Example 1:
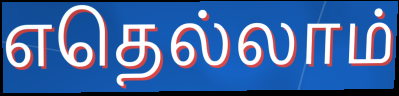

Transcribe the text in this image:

எதெல்லாம்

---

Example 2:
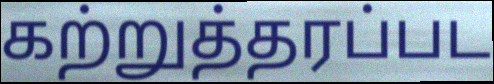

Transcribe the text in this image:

கற்றுத்தரப்பட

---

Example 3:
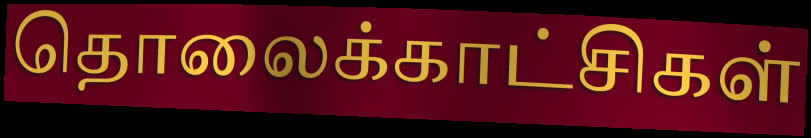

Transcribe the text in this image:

தொலைக்காட்சிகள்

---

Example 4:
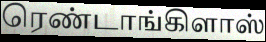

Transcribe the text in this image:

ரெண்டாங்கிளாஸ்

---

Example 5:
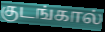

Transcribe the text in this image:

குடங்கால்